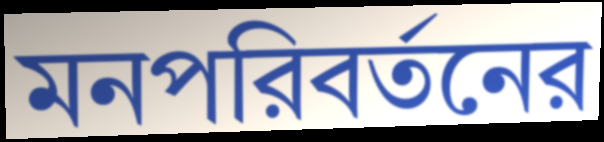
মনপরিবর্তনের